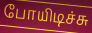
போயிடிச்சு